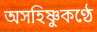
অসহিষ্ণুকণ্ঠে